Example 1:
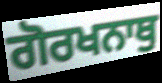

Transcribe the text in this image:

ਗੋਰਖਨਾਥੁ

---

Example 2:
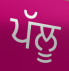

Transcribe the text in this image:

ਪੱਲੂ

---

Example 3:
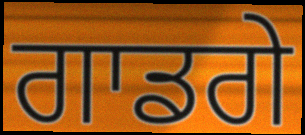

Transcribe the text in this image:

ਗਾਡਗੇ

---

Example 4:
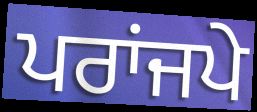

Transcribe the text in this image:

ਪਰਾਂਜਪੇ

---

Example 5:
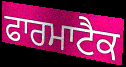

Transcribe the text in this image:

ਫਾਰਮਾਟੈਕ